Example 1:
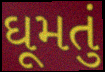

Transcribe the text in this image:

ઘૂમતું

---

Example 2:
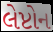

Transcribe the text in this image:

લેપ્ટોન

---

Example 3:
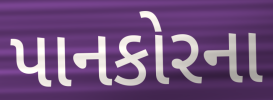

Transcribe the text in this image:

પાનકોરના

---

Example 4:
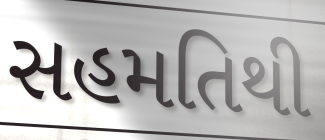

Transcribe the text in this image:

સહમતિથી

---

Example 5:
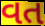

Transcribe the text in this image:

વત